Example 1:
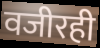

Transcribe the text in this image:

वजीरही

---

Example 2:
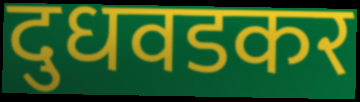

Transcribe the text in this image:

दुधवडकर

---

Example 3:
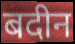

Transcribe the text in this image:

बदीन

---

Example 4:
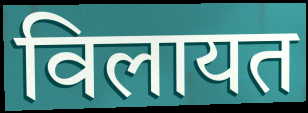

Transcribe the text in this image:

विलायत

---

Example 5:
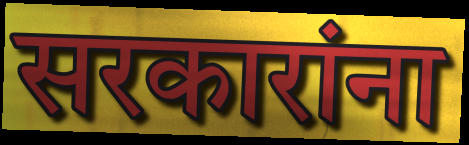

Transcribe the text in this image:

सरकारांना